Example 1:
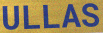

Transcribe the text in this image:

ULLAS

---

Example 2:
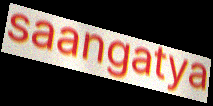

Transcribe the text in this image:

saangatya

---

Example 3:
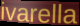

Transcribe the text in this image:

ivarella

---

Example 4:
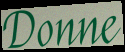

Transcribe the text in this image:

Donne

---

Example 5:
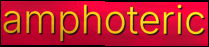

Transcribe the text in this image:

amphoteric